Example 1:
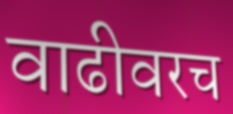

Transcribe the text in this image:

वाढीवरच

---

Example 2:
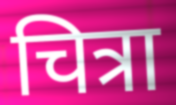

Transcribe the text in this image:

चित्रा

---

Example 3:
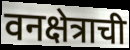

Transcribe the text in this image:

वनक्षेत्राची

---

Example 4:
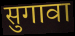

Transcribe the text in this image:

सुगावा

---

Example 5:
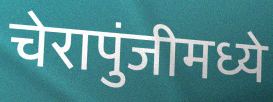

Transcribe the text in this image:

चेरापुंजीमध्ये